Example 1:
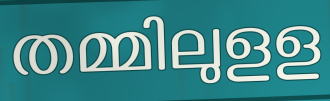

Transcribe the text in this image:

തമ്മിലുളള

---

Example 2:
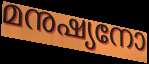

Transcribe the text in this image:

മനുഷ്യനോ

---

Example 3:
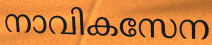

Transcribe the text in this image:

നാവികസേന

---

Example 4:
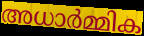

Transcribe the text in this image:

അധാർമ്മിക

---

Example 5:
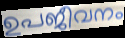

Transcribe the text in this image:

ഉപജീവനം